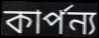
কার্পন্য